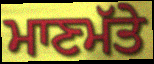
ਮਾਣਮੱਤੇ